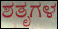
ಶತೃಗಳ